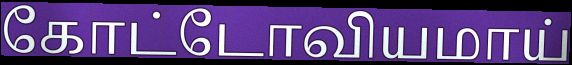
கோட்டோவியமாய்